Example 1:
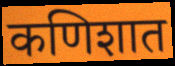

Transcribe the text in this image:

कणिशात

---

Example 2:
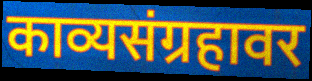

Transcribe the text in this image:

काव्यसंग्रहावर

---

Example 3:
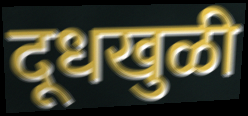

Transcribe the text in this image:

दूधखुळी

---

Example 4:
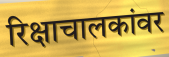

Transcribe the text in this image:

रिक्षाचालकांवर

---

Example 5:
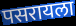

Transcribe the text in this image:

पसरायला